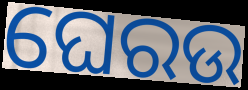
ଘେରଉ